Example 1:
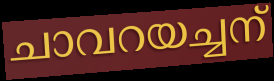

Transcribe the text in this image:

ചാവറയച്ചന്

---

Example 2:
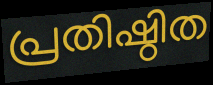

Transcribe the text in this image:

പ്രതിഷ്ഠിത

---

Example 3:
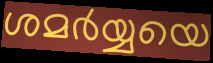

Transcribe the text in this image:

ശമർയ്യയെ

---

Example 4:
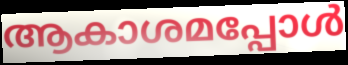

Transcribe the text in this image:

ആകാശമപ്പോൾ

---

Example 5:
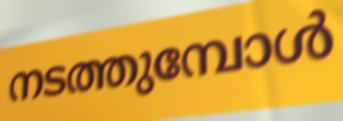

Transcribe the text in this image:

നടത്തുമ്പോൾ